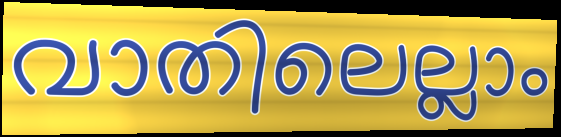
വാതിലെല്ലാം